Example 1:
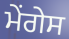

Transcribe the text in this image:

ਮੇਂਗੇਸ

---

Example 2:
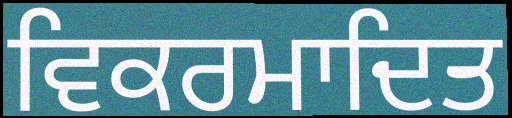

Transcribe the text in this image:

ਵਿਕਰਮਾਦਿਤ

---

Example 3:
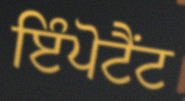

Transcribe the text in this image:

ਇੰਪੋਟੈਂਟ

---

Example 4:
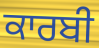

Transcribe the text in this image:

ਕਾਰਬੀ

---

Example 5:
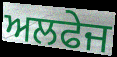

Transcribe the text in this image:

ਅਲਫੇਜ